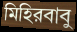
মিহিরবাবু